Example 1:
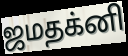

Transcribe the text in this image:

ஜமதக்னி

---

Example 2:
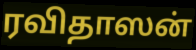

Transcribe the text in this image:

ரவிதாஸன்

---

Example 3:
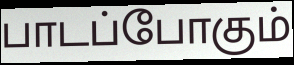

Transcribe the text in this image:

பாடப்போகும்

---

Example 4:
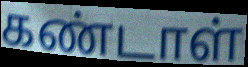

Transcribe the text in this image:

கண்டாள்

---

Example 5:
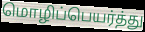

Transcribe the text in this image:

மொழிப்பெயர்த்து